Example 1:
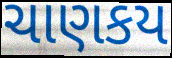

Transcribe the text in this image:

ચાણકય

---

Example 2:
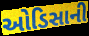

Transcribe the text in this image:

ઓડિસાની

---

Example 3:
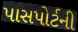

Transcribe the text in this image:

પાસપોર્ટની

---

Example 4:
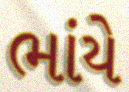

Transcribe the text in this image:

ભાંયે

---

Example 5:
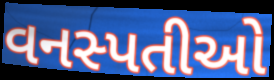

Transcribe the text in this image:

વનસ્પતીઓ